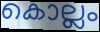
കൊല്ലം